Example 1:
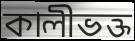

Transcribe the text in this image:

কালীভক্ত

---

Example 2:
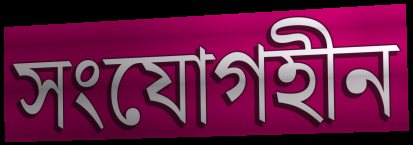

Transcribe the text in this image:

সংযোগহীন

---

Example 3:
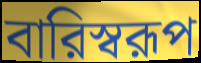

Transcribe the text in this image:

বারিস্বরূপ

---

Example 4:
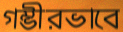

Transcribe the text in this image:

গম্ভীরভাবে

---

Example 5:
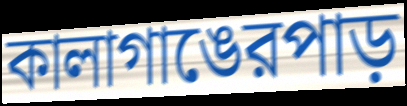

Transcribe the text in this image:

কালাগাঙেরপাড়